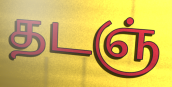
தடஞ்